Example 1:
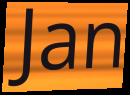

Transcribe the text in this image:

Jan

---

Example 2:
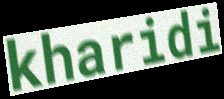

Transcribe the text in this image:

kharidi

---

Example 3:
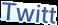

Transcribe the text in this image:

Twitt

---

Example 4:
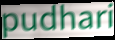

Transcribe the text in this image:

pudhari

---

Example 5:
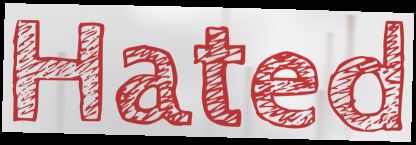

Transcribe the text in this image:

Hated